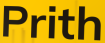
Prith